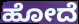
ಹೋದೆ